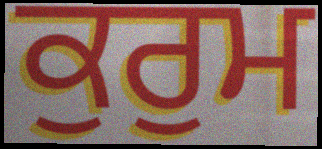
ਕੁਰੁਮ